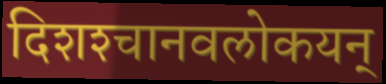
दिशश्चानवलोकयन्